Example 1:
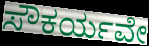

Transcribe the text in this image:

ಸೌಕರ್ಯವೇ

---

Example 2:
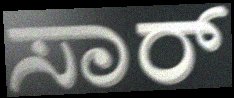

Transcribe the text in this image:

ಸಾರ್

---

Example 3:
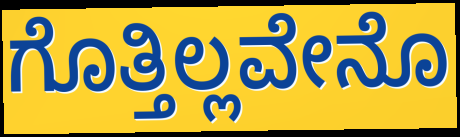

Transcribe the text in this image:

ಗೊತ್ತಿಲ್ಲವೇನೊ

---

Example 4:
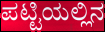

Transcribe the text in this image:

ಪಟ್ಟಿಯಲ್ಲಿನ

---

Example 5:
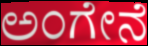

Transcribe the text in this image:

ಅಂಗೇನೆ